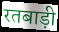
रतबाड़ी